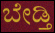
ಬೇಡ್ತಿ